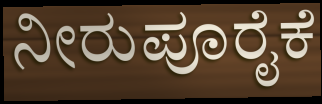
ನೀರುಪೂರೈಕೆ